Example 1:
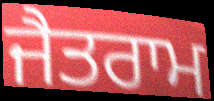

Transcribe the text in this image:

ਜੈਤਰਾਮ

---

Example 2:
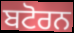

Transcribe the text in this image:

ਬਟੋਰਨ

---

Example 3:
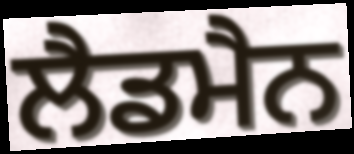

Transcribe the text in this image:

ਲੈਡਮੈਨ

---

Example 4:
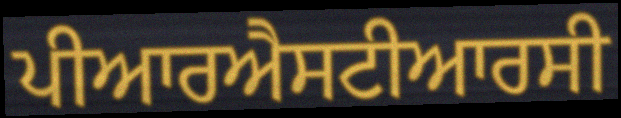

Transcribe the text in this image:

ਪੀਆਰਐਸਟੀਆਰਸੀ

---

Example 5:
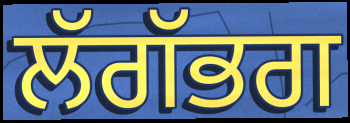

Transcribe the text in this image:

ਲੱਗੱਭਗ